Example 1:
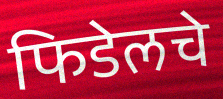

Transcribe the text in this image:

फिडेलचे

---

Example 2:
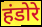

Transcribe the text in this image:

हंडोरे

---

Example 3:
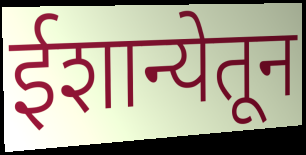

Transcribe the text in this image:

ईशान्येतून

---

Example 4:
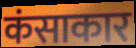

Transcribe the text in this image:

कंसाकार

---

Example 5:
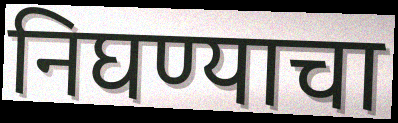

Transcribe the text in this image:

निघण्याचा